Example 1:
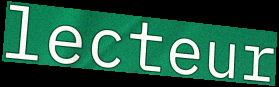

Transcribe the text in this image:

lecteur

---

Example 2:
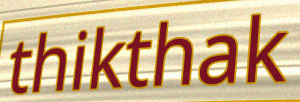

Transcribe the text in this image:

thikthak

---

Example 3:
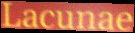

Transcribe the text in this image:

Lacunae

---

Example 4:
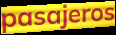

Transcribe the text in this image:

pasajeros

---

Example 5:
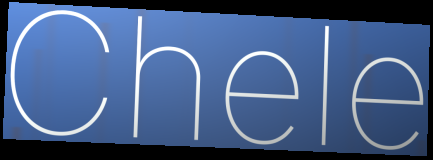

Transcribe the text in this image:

Chele